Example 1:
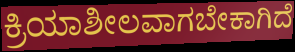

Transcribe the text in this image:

ಕ್ರಿಯಾಶೀಲವಾಗಬೇಕಾಗಿದೆ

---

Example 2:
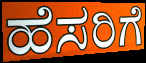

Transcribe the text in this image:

ಹೆಸರಿಗೆ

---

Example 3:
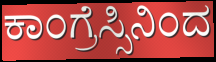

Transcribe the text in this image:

ಕಾಂಗ್ರೆಸ್ಸಿನಿಂದ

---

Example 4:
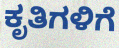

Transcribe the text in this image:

ಕೃತಿಗಳಿಗೆ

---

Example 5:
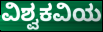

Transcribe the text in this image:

ವಿಶ್ವಕವಿಯ